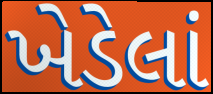
ખેડેલાં